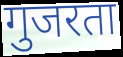
गुजरता